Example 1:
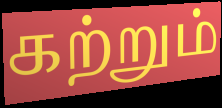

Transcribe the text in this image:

கற்றும்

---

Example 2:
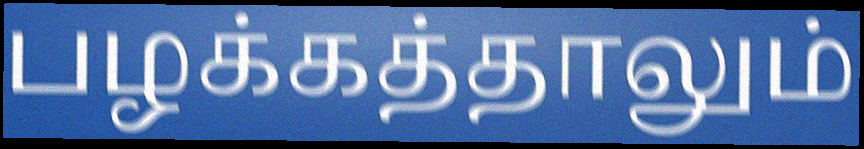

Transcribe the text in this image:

பழக்கத்தாலும்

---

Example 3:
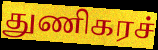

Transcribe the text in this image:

துணிகரச்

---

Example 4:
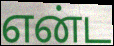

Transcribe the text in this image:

என்ட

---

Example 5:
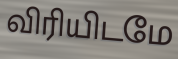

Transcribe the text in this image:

விரியிடமே